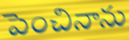
పెంచినాను